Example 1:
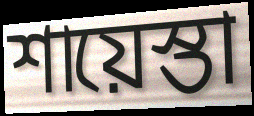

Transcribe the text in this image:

শায়েস্তা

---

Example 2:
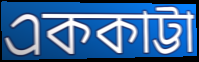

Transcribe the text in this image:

এককাট্টা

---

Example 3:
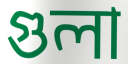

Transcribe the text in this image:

গুলা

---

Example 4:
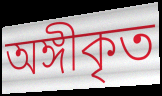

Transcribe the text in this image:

অঙ্গীকৃত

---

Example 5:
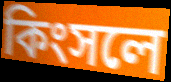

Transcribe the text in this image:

কিংসলে